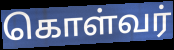
கொள்வர்